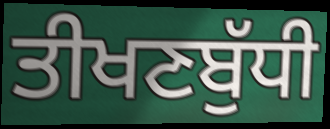
ਤੀਖਣਬੁੱਧੀ